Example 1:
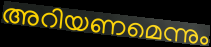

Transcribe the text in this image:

അറിയണമെന്നും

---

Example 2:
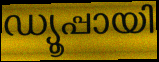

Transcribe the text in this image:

ഡ്യൂപ്പായി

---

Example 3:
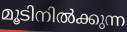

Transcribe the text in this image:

മൂടിനിൽക്കുന്ന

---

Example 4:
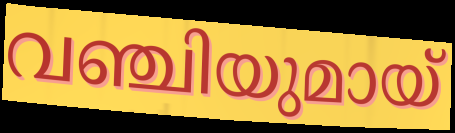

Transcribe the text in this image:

വഞ്ചിയുമായ്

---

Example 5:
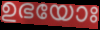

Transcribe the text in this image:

ഉഭയോഃ